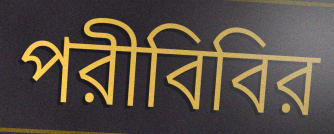
পরীবিবির